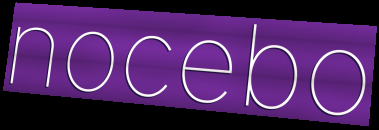
nocebo